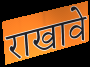
राखावे